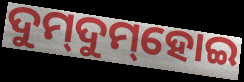
ଦୁମ୍‌ଦୁମ୍‌ହୋଇ